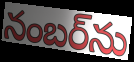
నంబర్‌ను